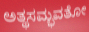
ಅತ್ಥಸಮ್ಭವತೋ